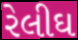
રેલીઘ